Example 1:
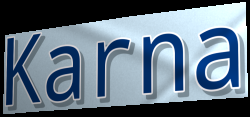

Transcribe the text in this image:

Karna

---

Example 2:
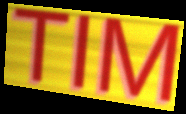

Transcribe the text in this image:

TIM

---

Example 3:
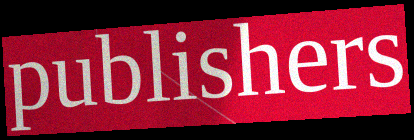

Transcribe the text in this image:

publishers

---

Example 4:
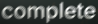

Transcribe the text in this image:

complete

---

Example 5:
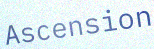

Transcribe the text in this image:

Ascension